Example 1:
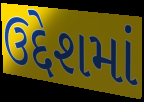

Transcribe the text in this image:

ઉદ્દેશમાં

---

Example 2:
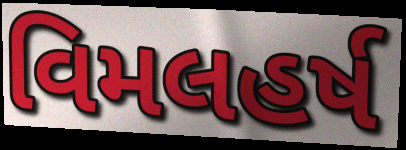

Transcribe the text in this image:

વિમલહર્ષ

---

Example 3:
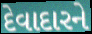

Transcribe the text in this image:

દેવાદારને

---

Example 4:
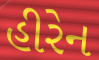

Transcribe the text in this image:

હીરેન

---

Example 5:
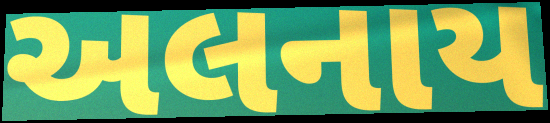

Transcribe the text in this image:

અલનાય